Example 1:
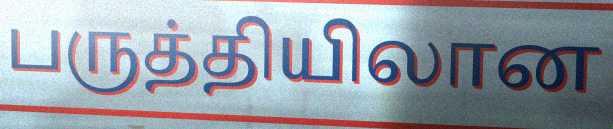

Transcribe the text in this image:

பருத்தியிலான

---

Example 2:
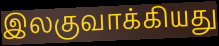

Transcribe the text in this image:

இலகுவாக்கியது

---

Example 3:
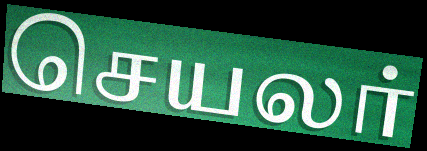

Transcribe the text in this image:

செயலர்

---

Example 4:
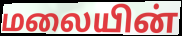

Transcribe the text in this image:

மலையின்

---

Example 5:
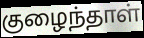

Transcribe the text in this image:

குழைந்தாள்